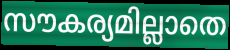
സൗകര്യമില്ലാതെ